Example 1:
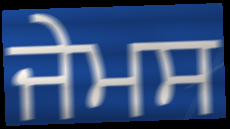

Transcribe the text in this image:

ਜੇਮਸ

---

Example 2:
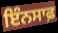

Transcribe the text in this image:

ਇੰਨਸਾਫ਼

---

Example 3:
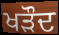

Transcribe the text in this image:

ਖੜੌਦ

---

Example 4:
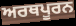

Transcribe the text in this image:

ਅਰਥਪੂਰਨ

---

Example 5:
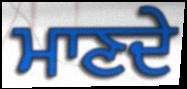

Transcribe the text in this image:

ਮਾਣਦੇ